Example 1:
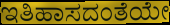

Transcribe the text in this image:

ಇತಿಹಾಸದಂತೆಯೇ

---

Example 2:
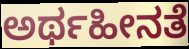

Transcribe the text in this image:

ಅರ್ಥಹೀನತೆ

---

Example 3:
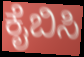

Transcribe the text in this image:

ಕೈಬಿಸಿ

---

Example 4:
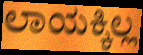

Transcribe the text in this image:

ಲಾಯಕ್ಕಿಲ್ಲ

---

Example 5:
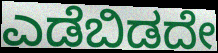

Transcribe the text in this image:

ಎಡೆಬಿಡದೇ